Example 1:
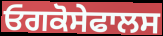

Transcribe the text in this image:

ਓਗਕੋਸੇਫਾਲਸ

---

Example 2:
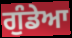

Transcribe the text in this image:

ਗੁੰਡੇਆ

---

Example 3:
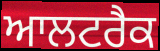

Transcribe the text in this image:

ਆਲਟਰੈਕ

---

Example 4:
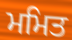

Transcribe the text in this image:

ਮਮਿਤ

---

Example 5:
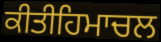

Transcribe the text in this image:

ਕੀਤੀਹਿਮਾਚਲ